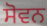
ਸੋਵਨ